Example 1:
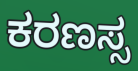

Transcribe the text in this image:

ಕರಣಸ್ಸ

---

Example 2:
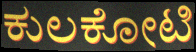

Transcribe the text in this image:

ಕುಲಕೋಟಿ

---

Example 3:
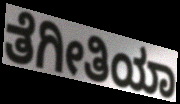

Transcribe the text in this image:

ತೆಗೀತಿಯಾ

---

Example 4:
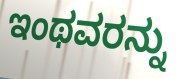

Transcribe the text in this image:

ಇಂಥವರನ್ನು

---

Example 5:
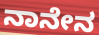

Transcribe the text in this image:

ನಾನೇನ